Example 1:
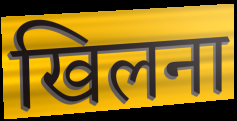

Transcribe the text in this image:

खिलना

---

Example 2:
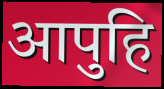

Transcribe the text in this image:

आपुहि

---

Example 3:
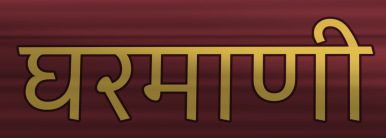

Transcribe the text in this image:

घरमाणी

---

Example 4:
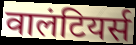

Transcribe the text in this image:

वालंटियर्स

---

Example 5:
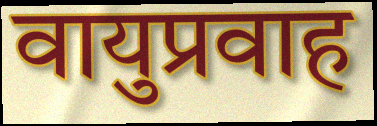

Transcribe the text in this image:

वायुप्रवाह